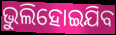
ଭୁଲିହୋଇଯିବ